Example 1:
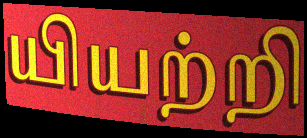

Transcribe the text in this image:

யியற்றி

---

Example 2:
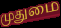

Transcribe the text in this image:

முதுமை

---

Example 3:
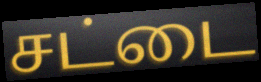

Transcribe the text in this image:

சட்டை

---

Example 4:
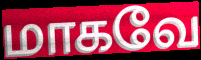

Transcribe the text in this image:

மாகவே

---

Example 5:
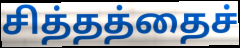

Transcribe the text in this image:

சித்தத்தைச்